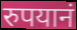
रुपयानं